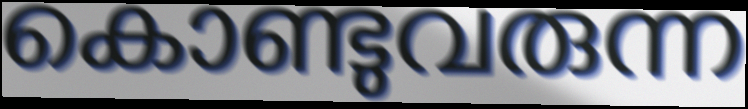
കൊണ്ടുവരുന്ന